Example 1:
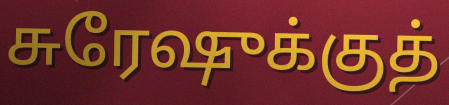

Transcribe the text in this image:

சுரேஷுக்குத்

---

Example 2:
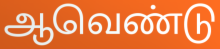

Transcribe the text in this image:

ஆவெண்டு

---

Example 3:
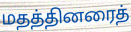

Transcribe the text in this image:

மதத்தினரைத்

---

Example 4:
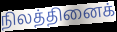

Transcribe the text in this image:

நிலத்தினைக்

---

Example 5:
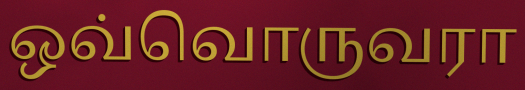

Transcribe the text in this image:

ஒவ்வொருவரா